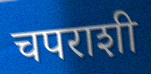
चपराशी